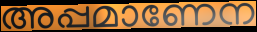
അപ്പമാണേന